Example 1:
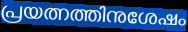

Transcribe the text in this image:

പ്രയത്നത്തിനുശേഷം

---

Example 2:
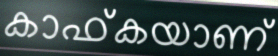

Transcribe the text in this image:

കാഫ്കയാണ്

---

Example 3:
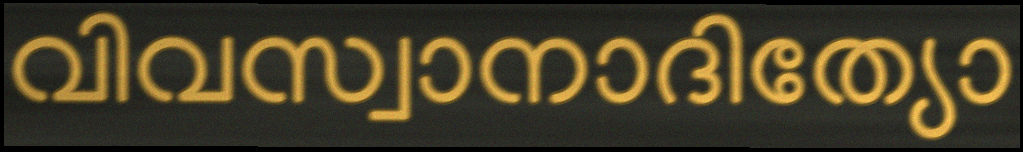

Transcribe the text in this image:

വിവസ്വാനാദിത്യോ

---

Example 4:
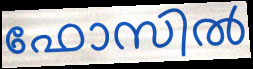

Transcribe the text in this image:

ഫോസിൽ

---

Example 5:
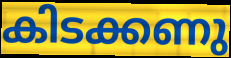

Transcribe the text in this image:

കിടക്കണു